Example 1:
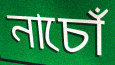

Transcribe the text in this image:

নাচোঁ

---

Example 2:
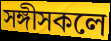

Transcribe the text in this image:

সঙ্গীসকলে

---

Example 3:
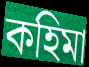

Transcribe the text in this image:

কহিমা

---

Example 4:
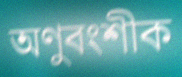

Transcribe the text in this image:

অণুবংশীক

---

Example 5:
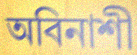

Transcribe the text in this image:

অবিনাশী